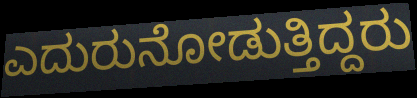
ಎದುರುನೋಡುತ್ತಿದ್ದರು